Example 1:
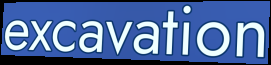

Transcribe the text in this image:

excavation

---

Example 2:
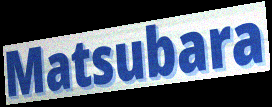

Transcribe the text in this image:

Matsubara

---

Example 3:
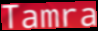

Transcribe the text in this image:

Tamra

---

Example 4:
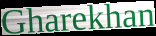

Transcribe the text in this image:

Gharekhan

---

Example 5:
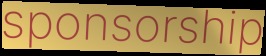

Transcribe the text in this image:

sponsorship